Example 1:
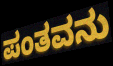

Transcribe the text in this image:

ಪಂತವನು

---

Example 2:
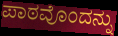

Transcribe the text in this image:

ಪಾಠವೊಂದನ್ನು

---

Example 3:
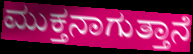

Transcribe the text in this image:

ಮುಕ್ತನಾಗುತ್ತಾನೆ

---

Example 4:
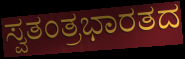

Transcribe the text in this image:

ಸ್ವತಂತ್ರಭಾರತದ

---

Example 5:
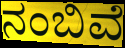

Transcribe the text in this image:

ನಂಬಿವೆ